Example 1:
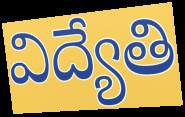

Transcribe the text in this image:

విద్యేతి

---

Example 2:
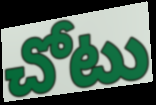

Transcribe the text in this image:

చోటు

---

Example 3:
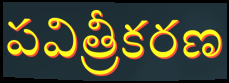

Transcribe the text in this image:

పవిత్రీకరణ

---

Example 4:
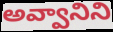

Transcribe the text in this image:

అవ్వానిని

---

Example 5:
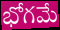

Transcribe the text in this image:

భోగమే